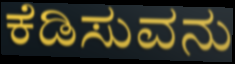
ಕೆಡಿಸುವನು